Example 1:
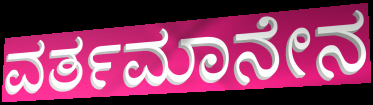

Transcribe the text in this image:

ವರ್ತಮಾನೇನ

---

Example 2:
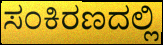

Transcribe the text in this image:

ಸಂಕಿರಣದಲ್ಲಿ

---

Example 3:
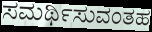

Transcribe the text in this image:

ಸಮರ್ಥಿಸುವಂತಹ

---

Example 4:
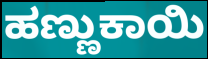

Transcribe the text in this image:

ಹಣ್ಣುಕಾಯಿ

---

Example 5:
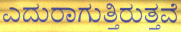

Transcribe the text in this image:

ಎದುರಾಗುತ್ತಿರುತ್ತವೆ